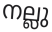
നല്ലു